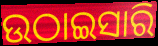
ଉଠାଇସାରି